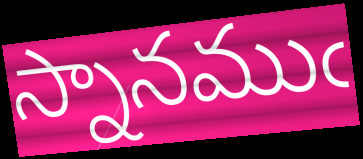
స్నానముఁ